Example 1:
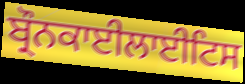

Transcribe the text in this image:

ਬ੍ਰੌਨਕਾਈਲਾਈਟਿਸ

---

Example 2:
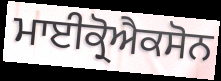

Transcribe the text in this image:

ਮਾਈਕ੍ਰੋਐਕਸੋਨ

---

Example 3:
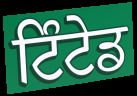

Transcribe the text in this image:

ਟਿੰਟੇਡ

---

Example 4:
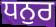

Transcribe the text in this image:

ਧਨੁਰ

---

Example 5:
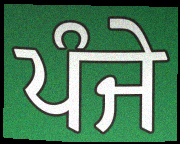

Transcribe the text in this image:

ਪੰਜੇ